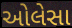
ઓલેસા